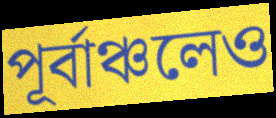
পূর্বাঞ্চলেও